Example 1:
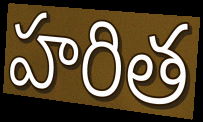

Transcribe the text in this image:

హరిత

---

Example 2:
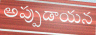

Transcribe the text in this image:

అప్పుడాయన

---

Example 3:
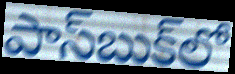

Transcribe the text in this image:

పాస్‌బుక్‌లో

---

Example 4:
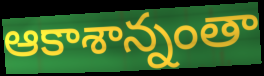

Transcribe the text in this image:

ఆకాశాన్నంతా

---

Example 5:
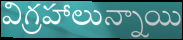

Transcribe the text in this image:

విగ్రహాలున్నాయి